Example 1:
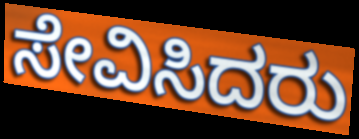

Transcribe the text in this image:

ಸೇವಿಸಿದರು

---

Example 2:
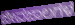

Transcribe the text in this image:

ಜೀವಜಾಲಗಳ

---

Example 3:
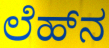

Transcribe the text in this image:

ಲೆಹ್‌ನ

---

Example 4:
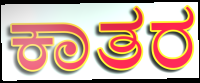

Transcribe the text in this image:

ಕಾತರ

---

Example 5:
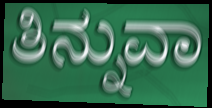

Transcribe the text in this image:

ತಿನ್ನುವಾ